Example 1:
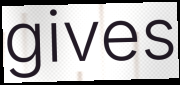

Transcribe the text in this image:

gives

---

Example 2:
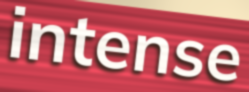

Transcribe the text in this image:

intense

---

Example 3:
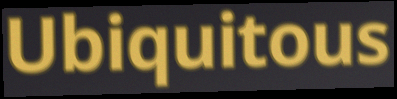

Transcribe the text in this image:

Ubiquitous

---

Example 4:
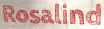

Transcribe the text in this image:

Rosalind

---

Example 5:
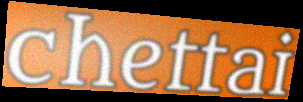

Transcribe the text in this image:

chettai